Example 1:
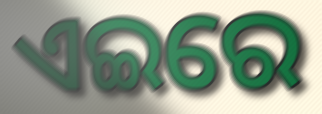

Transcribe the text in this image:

ଏଇରେ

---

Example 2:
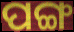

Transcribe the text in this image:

ପଙ୍ଗ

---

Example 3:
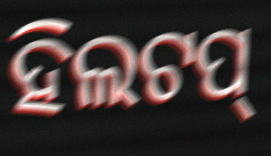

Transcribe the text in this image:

ହିଲଟପ୍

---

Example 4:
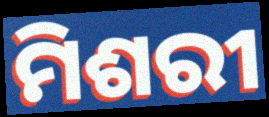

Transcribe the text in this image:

ମିଶରୀ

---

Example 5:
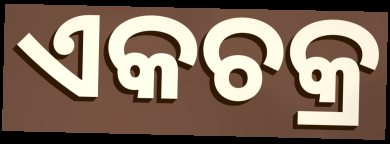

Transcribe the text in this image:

ଏକଚକ୍ର